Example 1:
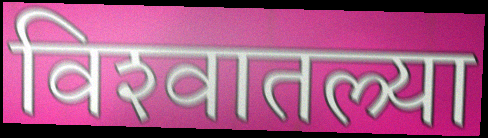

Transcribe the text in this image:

विश्वातल्या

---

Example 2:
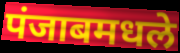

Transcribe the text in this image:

पंजाबमधले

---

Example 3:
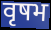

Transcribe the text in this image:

वृषभ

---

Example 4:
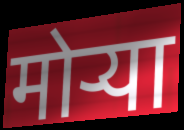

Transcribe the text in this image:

मोऱ्या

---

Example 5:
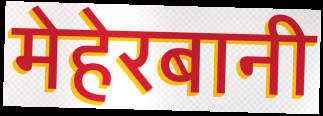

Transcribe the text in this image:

मेहेरबानी